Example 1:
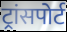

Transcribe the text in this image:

ट्रांसपोर्ट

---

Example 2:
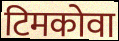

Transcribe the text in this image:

टिमकोवा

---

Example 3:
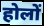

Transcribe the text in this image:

होलों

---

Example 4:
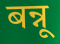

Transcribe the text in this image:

बन्नू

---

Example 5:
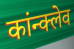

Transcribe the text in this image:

कांन्क्लेव